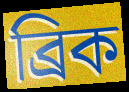
ব্রিক